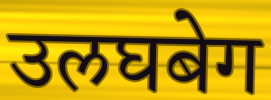
उलघबेग